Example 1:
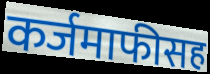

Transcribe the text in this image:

कर्जमाफीसह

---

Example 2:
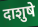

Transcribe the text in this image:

दाशुषे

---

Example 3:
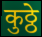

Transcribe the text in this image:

कुठ्ठे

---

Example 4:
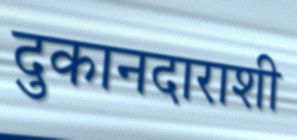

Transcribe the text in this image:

दुकानदाराशी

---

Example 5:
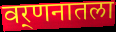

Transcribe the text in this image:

वर्णनातला